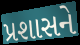
પ્રશાસને